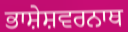
ਭਾਸ਼ੇਸ਼ਵਰਨਾਥ